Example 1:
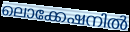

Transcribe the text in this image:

ലൊക്കേഷനിൽ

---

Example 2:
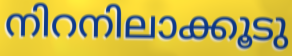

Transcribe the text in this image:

നിറനിലാക്കൂടു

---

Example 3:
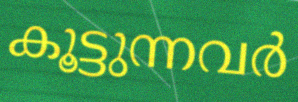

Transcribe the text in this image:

കൂട്ടുന്നവർ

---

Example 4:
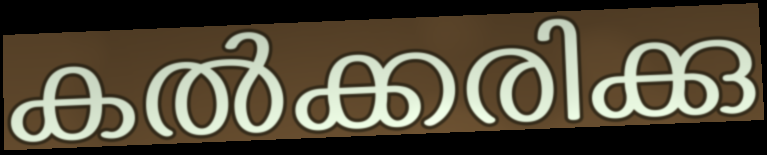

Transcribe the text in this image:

കൽക്കരിക്കു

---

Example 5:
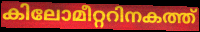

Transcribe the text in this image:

കിലോമീറ്ററിനകത്ത്